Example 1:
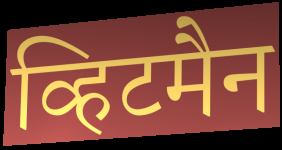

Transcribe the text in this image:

व्हिटमैन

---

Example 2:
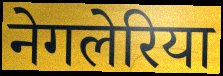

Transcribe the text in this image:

नेगलेरिया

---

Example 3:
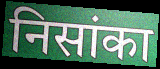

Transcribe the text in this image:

निसांका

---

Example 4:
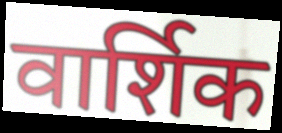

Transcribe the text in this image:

वार्शिक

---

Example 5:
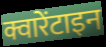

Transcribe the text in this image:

क्वारेंटाइन